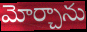
మోర్చాను